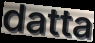
datta